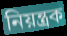
নিয়ন্ত্রক